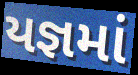
યજ્ઞમાં